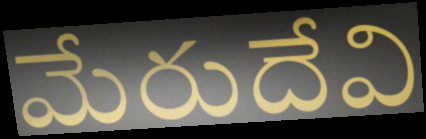
మేరుదేవి